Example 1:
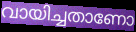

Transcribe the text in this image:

വായിച്ചതാണോ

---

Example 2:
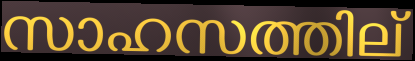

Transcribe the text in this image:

സാഹസത്തില്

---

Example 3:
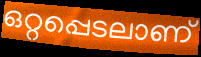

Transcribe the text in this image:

ഒറ്റപ്പെടലാണ്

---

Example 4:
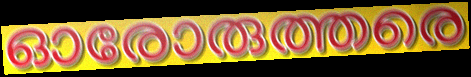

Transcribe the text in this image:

ഓരോരുത്തരെ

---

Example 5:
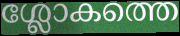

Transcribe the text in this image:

ശ്ലോകത്തെ